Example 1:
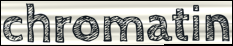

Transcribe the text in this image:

chromatin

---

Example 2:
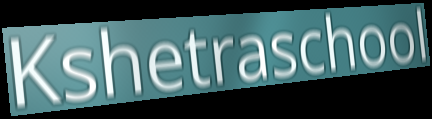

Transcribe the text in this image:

Kshetraschool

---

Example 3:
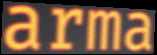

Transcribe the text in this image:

arma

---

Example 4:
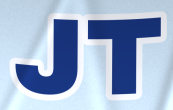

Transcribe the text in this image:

JT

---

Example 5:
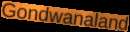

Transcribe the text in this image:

Gondwanaland